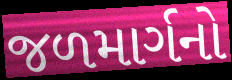
જળમાર્ગનો